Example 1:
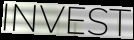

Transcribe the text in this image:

INVEST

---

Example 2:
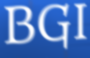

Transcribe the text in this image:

BGI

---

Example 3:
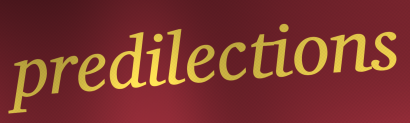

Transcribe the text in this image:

predilections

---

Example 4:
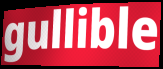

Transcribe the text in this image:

gullible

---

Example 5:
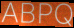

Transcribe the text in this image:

ABPQ